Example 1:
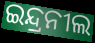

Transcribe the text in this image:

ଇନ୍ଦ୍ରନୀଲ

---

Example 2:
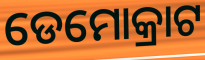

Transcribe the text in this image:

ଡେମୋକ୍ରାଟ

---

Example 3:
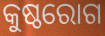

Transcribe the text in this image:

କୁଷ୍ଠରୋଗ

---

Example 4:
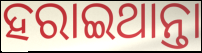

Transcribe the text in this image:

ହରାଇଥାନ୍ତା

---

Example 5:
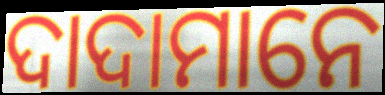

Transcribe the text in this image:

ଦାଦାମାନେ